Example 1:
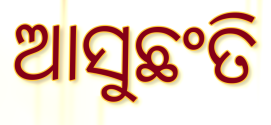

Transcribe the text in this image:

ଆସୁଛଂତି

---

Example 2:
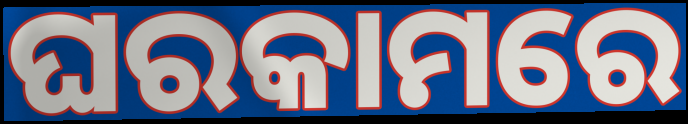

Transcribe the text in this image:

ଘରକାମରେ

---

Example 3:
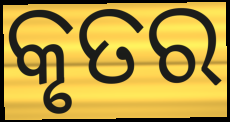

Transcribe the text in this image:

କୃତର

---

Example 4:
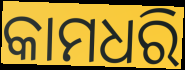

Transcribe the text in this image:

କାମଧରି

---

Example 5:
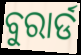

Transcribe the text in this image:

ବୁରାର୍ଡ